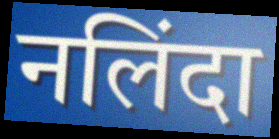
नलिंदा